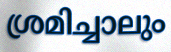
ശ്രമിച്ചാലും